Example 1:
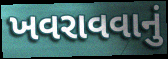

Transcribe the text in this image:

ખવરાવવાનું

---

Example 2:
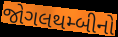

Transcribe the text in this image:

જોગલથમ્બીનો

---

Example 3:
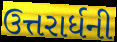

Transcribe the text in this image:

ઉત્તરાર્ધની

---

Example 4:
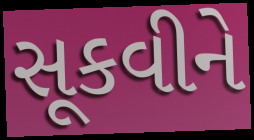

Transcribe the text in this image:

સૂકવીને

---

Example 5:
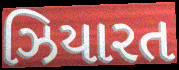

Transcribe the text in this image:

ઝિયારત